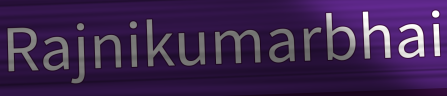
Rajnikumarbhai